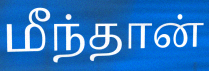
மீந்தான்